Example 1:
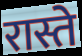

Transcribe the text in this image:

रास्ते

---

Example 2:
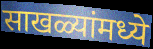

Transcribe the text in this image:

साखळ्यांमध्ये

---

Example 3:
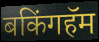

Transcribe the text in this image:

बकिंगहॅम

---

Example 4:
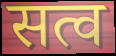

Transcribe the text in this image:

सत्व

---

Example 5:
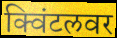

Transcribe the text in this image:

क्विंटलवर